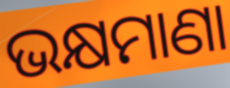
ଭକ୍ଷମାଣା